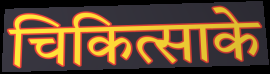
चिकित्साके